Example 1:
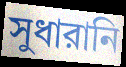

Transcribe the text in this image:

সুধারানি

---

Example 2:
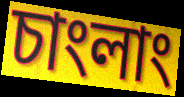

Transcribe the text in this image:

চাংলাং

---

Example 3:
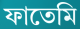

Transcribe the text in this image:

ফাতেমি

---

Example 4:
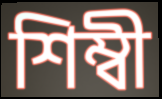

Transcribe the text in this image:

শিম্বী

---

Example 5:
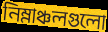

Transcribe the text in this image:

নিম্নাঞ্চলগুলো